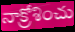
నాక్రోశించు